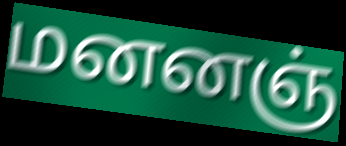
மனனஞ்